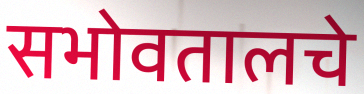
सभोवतालचे